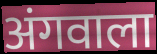
अंगवाला